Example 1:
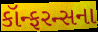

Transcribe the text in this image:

કૉન્ફરન્સના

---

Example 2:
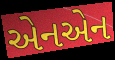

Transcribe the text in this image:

એનએન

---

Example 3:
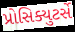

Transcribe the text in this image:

પ્રોસિક્યુટર્સે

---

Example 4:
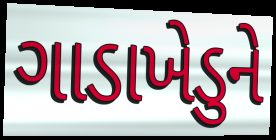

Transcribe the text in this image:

ગાડાખેડુને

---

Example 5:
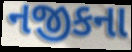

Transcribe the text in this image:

નજીકના